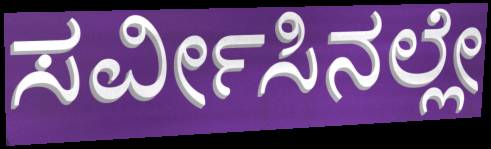
ಸರ್ವೀಸಿನಲ್ಲೇ